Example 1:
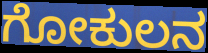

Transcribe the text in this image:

ಗೋಕುಲನ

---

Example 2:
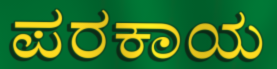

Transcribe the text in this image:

ಪರಕಾಯ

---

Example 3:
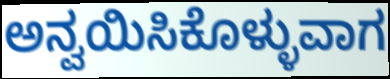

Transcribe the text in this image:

ಅನ್ವಯಿಸಿಕೊಳ್ಳುವಾಗ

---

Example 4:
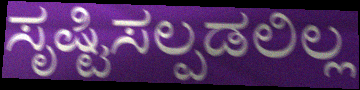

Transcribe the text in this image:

ಸೃಷ್ಟಿಸಲ್ಪಡಲಿಲ್ಲ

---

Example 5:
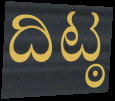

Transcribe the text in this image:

ದಿಟ್ಠ